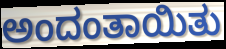
ಅಂದಂತಾಯಿತು